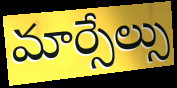
మార్సేల్సు